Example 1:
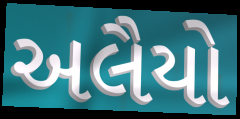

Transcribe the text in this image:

અલૈયો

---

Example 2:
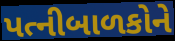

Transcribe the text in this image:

પત્નીબાળકોને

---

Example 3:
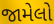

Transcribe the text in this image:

જામેલો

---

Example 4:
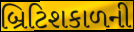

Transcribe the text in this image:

બ્રિટિશકાળની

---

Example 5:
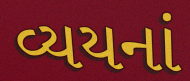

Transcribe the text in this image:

વ્યયનાં